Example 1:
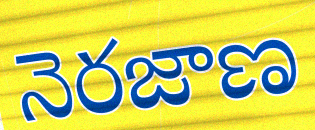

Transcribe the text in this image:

నెరజాణ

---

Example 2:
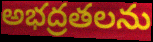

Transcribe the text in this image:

అభద్రతలను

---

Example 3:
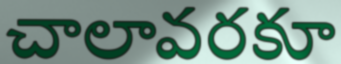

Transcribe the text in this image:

చాలావరకూ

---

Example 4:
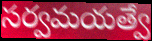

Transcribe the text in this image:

సర్వమయత్వే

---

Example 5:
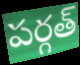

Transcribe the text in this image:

పర్గత్